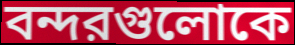
বন্দরগুলোকে